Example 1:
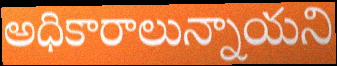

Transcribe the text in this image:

అధికారాలున్నాయని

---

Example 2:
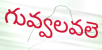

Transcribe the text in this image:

గువ్వలవలె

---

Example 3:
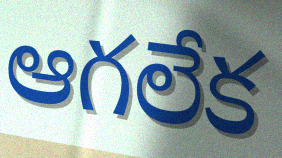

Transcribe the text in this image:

ఆగలేక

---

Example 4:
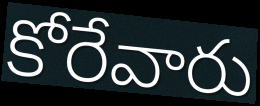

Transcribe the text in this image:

కోరేవారు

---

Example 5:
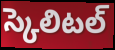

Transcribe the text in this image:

స్కెలిటల్